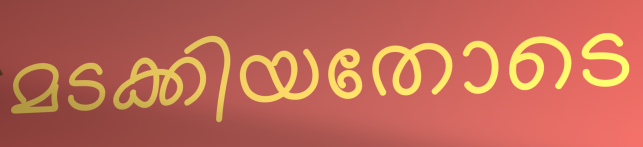
മടക്കിയതോടെ